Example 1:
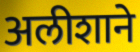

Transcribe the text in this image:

अलीशाने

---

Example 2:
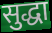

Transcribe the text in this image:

सुद्धा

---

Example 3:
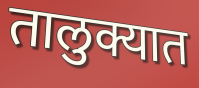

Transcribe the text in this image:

तालुक्यात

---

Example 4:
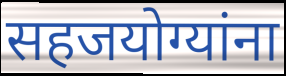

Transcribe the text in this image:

सहजयोग्यांना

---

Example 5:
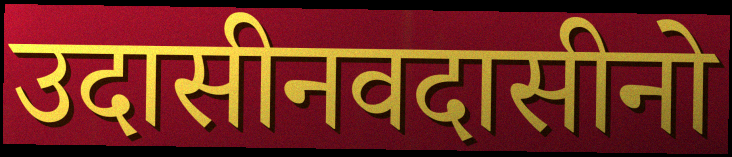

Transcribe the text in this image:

उदासीनवदासीनो